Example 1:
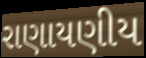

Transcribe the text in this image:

રાણાયણીય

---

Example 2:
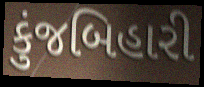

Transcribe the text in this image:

કુંજબિહારી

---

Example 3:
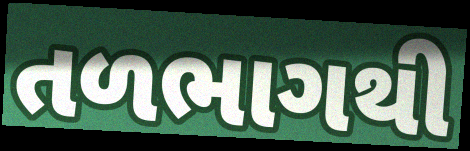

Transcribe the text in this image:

તળભાગથી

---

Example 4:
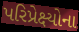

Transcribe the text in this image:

પરિપ્રેક્ષ્યોના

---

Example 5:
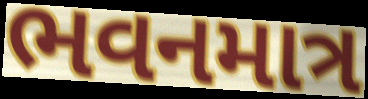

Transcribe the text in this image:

ભવનમાત્ર